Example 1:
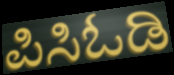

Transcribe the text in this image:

ಪಿಸಿಓಡಿ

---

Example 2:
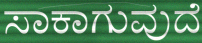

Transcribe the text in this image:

ಸಾಕಾಗುವುದೆ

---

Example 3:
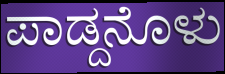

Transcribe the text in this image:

ಪಾಡ್ದನೊಳು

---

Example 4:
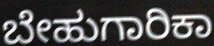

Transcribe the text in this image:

ಬೇಹುಗಾರಿಕಾ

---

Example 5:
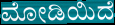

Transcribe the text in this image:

ಮೋಡಿಯಿದೆ